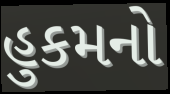
હુકમનો